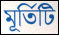
মূর্তিটি